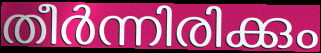
തീർന്നിരിക്കും